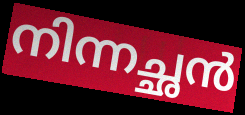
നിന്നച്ഛൻ